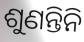
ଶୁଣନ୍ତିନି